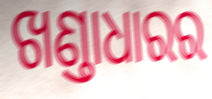
ଖଣ୍ଡାଧାରର